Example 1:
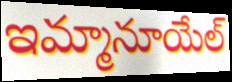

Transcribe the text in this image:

ఇమ్మానూయేల్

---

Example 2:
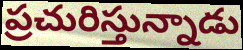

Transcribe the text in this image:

ప్రచురిస్తున్నాడు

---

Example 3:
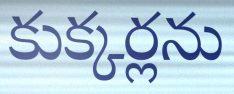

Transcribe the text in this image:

కుక్కర్లను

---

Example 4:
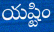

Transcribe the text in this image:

యష్టిం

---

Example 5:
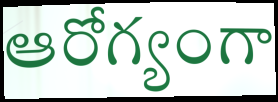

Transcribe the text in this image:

ఆరోగ్యంగా